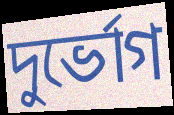
দুর্ভোগ